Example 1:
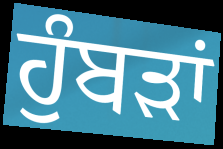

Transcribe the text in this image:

ਹੁੰਬੜਾਂ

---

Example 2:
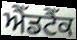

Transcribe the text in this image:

ਐੱਡਟੈੱਕ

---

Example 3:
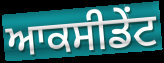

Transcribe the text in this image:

ਆਕਸੀਡੇਂਟ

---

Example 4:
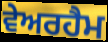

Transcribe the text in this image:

ਵੇਅਰਹੈਮ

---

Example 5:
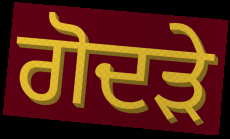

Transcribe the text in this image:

ਗੋਦੜੇ